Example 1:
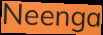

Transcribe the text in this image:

Neenga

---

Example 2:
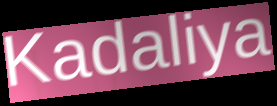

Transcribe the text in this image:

Kadaliya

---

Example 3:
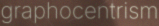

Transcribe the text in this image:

graphocentrism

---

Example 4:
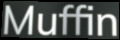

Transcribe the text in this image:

Muffin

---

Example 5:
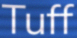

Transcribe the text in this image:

Tuff